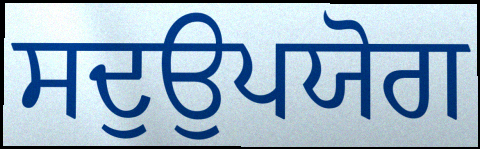
ਸਦੁਉਪਯੋਗ